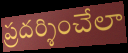
ప్రదర్శించేలా